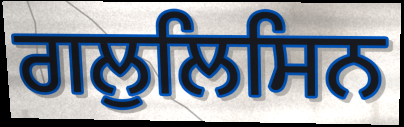
ਗਲੁਲਿਸਿਨ